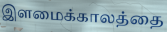
இளமைக்காலத்தை